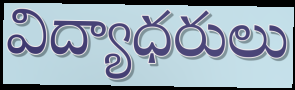
విద్యాధరులు